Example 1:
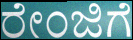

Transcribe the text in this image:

ರೇಂಜಿಗೆ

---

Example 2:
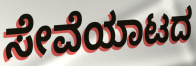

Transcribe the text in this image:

ಸೇವೆಯಾಟದ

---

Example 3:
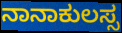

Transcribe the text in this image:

ನಾನಾಕುಲಸ್ಸ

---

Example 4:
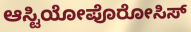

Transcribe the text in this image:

ಆಸ್ಟಿಯೋಪೊರೋಸಿಸ್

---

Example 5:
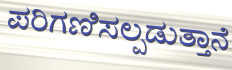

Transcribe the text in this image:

ಪರಿಗಣಿಸಲ್ಪಡುತ್ತಾನೆ